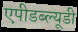
एपीडब्ल्यूडी